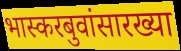
भास्करबुवांसारख्या